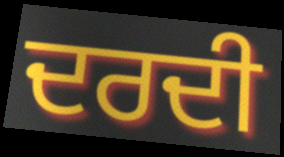
ਦਰਦੀ